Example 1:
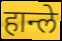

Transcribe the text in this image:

हान्ले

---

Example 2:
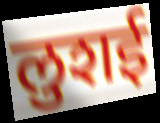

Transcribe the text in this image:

लुशई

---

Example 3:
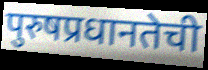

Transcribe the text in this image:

पुरुषप्रधानतेची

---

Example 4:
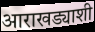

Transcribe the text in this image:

आराखड्याशी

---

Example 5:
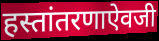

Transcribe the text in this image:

हस्तांतरणाऐवजी